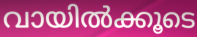
വായിൽക്കൂടെ